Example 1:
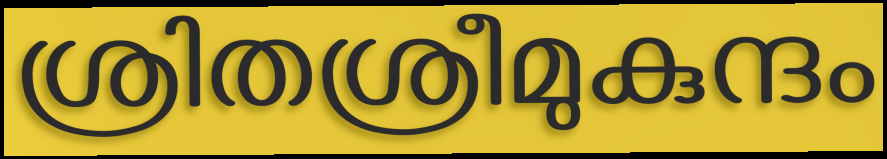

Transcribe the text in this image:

ശ്രിതശ്രീമുകുന്ദം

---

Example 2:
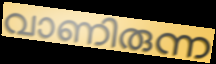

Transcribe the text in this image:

വാണിരുന്ന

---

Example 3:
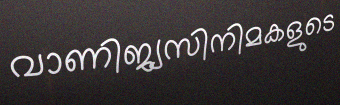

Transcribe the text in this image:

വാണിജ്യസിനിമകളുടെ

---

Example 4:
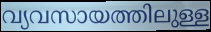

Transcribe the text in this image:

വ്യവസായത്തിലുള്ള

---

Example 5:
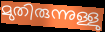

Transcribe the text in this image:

മുതിരുന്നുള്ളു